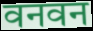
वनवन